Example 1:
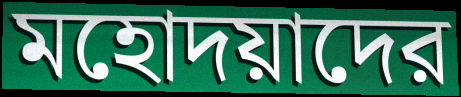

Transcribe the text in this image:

মহোদয়াদের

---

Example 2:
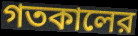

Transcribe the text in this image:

গতকালের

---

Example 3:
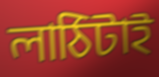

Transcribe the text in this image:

লাঠিটাই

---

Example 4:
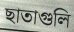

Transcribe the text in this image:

ছাতাগুলি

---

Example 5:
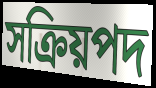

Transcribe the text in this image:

সক্রিয়পদ